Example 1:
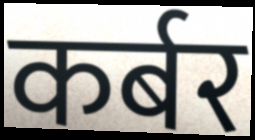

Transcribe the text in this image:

कर्बर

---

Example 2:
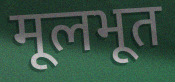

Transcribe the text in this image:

मूलभूत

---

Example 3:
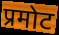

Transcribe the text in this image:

प्रमोट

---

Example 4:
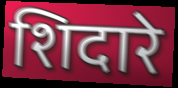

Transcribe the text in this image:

शिदारे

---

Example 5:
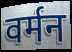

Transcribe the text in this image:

वर्मन